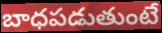
బాధపడుతుంటే